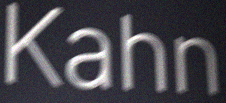
Kahn